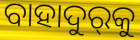
ବାହାଦୁର୍‌କୁ